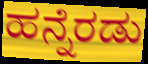
ಹನ್ನೆರಡು